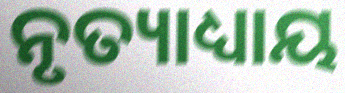
ନୃତ୍ୟାଧ୍ୟାୟ